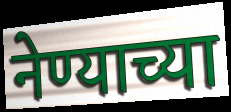
नेण्याच्या